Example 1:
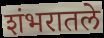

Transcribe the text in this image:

शंभरातले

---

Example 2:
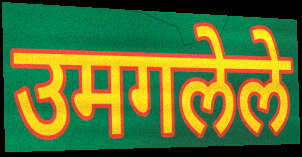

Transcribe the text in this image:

उमगलेले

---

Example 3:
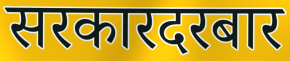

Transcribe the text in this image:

सरकारदरबार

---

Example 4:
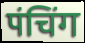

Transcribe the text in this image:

पंचिंग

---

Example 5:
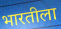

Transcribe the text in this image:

भारतीला